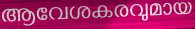
ആവേശകരവുമായ